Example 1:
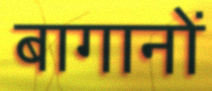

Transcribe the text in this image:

बागानों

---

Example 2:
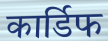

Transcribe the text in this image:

कार्डिफ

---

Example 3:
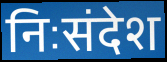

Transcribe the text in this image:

निःसंदेश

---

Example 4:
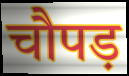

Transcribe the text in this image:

चौपड़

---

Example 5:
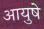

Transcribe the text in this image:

आयुषे